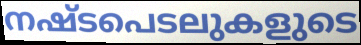
നഷ്ടപെടലുകളുടെ